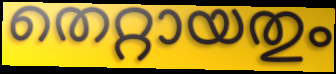
തെറ്റായതും